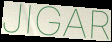
JIGAR